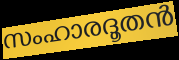
സംഹാരദൂതൻ